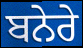
ਬਨੇਰੇ